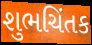
શુભચિંતક